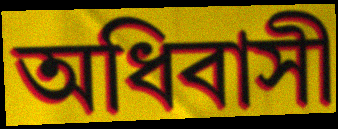
অধিবাসী